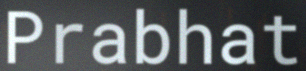
Prabhat